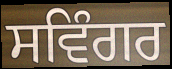
ਸਵਿੰਗਰ